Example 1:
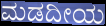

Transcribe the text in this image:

ಮಡದೀಯ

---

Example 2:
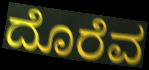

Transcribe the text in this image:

ದೊರೆವ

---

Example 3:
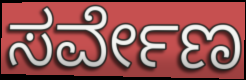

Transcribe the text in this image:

ಸರ್ವೇಣ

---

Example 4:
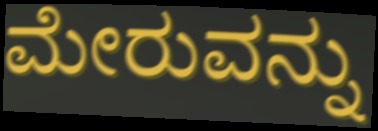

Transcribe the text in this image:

ಮೇರುವನ್ನು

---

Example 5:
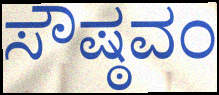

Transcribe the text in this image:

ಸೌಷ್ಠವಂ